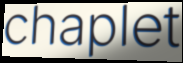
chaplet